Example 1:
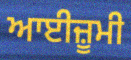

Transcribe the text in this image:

ਆਈਜ਼ੂਮੀ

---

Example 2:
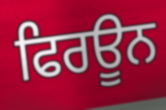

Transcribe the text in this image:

ਫਿਰਊਨ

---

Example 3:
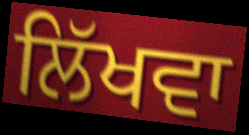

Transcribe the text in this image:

ਲਿੱਖਵਾ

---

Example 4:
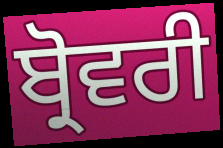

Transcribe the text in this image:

ਬ੍ਰੋਵਰੀ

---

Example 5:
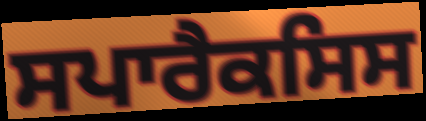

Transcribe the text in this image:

ਸਪਾਰੈਕਸਿਸ